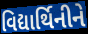
વિદ્યાર્થિનીને